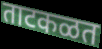
ताटकळत